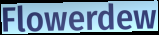
Flowerdew